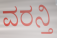
ವರನ್ತಿ